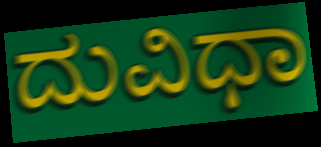
ದುವಿಧಾ